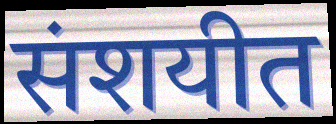
संशयीत